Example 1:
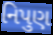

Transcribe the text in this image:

નિપુણ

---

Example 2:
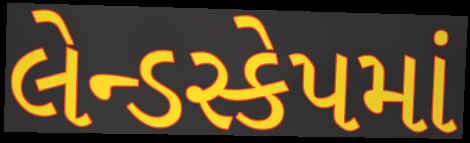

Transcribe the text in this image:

લેન્ડસ્કેપમાં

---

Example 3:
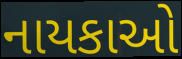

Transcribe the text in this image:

નાયકાઓ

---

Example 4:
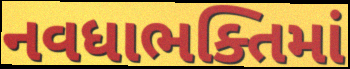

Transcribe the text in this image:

નવધાભક્તિમાં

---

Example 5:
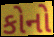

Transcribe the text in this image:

કોનો